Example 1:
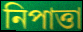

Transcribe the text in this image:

নিপাত্তা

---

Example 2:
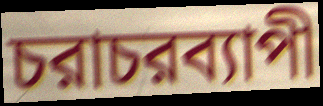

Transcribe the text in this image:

চরাচরব্যাপী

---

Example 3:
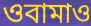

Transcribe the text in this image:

ওবামাও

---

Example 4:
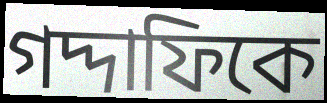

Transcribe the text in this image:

গদ্দাফিকে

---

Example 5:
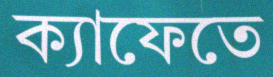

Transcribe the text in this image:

ক্যাফেতে